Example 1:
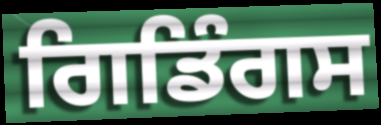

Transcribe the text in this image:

ਗਿਡਿੰਗਸ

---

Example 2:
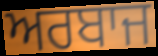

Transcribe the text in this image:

ਅਰਬਾਜ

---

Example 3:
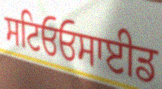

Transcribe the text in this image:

ਸਟਿਓਓਸਾਈਡ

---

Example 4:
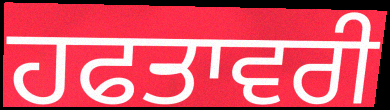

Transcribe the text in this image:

ਹਫਤਾਵਰੀ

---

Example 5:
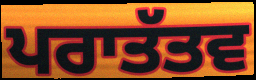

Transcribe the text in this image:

ਪਰਾਤੱਤਵ